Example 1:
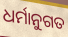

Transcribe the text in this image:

ଧର୍ମାନୁଗତ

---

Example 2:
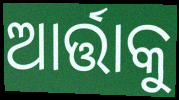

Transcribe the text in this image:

ଆର୍ତ୍ତାକୁ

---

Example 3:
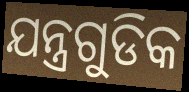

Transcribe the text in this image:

ଯନ୍ତ୍ରଗୁଡିକ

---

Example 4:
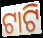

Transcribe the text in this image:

ଟାଟି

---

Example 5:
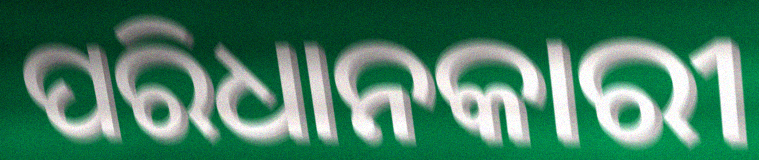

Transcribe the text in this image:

ପରିଧାନକାରୀ